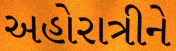
અહોરાત્રીને